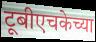
टूबीएचकेच्या